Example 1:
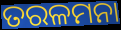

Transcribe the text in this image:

ତରଳମନା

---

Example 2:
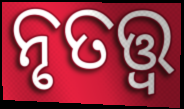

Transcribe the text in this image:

ନୃତତ୍ତ୍ୱ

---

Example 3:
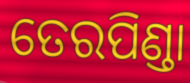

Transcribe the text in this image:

ତେରପିଣ୍ଡା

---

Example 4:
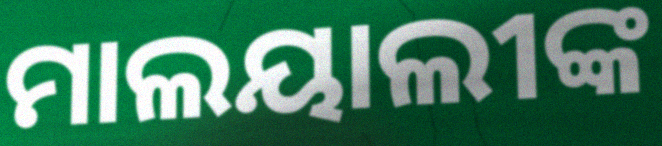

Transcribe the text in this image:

ମାଲୟାଲୀଙ୍କ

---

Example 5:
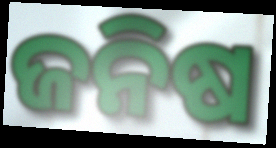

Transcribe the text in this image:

ଜନିଷ